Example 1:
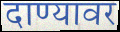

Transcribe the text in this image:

दाण्यावर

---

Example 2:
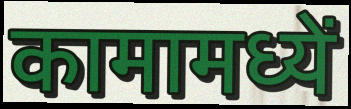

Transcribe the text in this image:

कामामध्यें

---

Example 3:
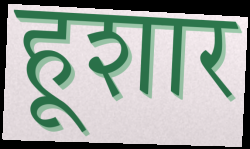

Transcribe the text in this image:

हूशार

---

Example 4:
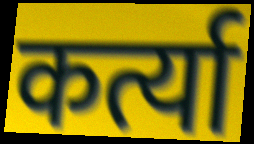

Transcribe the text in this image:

कर्त्या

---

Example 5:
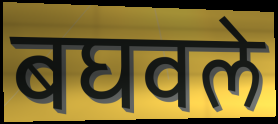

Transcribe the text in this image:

बघवले